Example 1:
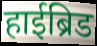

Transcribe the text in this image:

हाईब्रिड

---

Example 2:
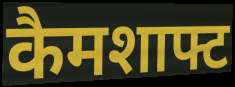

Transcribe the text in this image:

कैमशाफ्ट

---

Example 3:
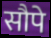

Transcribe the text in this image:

सौपे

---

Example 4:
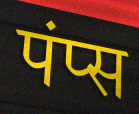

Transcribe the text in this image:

पंप्स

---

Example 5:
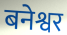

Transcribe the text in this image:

बनेश्वर